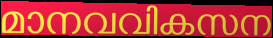
മാനവവികസന